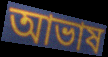
আভাষ